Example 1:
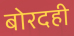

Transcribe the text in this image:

बोरदही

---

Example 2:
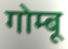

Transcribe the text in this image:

गोम्बू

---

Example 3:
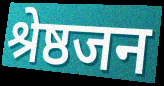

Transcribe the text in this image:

श्रेष्ठजन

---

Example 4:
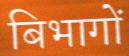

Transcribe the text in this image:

बिभागों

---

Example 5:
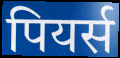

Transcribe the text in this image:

पियर्स